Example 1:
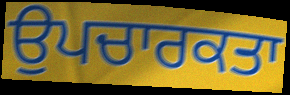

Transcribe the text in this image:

ਉਪਚਾਰਕਤਾ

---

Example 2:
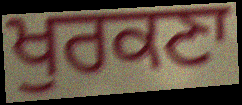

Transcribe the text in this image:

ਖੁਰਕਣਾ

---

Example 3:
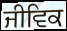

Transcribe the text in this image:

ਜੀਵਿਕ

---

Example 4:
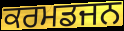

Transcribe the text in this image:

ਕਰਮਡਜਨ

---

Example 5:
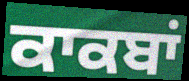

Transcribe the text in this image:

ਕਾਕਬਾਂ